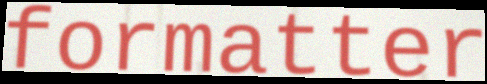
formatter